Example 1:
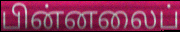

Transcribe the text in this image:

பின்னலைப்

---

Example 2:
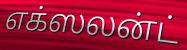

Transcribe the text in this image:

எக்ஸலன்ட்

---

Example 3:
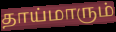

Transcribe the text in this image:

தாய்மாரும்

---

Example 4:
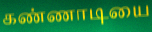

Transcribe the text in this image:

கண்ணாடியை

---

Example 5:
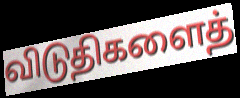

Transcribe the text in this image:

விடுதிகளைத்